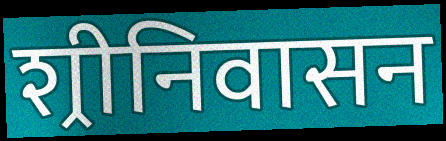
श्रीनिवासन